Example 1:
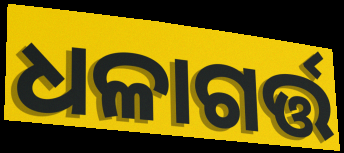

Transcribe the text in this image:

ଧଳାଗର୍ତ୍ତ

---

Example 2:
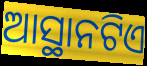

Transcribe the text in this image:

ଆସ୍ଥାନଟିଏ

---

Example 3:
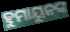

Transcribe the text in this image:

ହୁମାୟୁନଙ୍କ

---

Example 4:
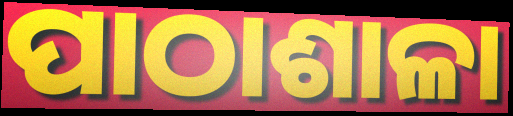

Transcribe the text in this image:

ପାଠାଶାଳା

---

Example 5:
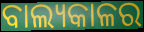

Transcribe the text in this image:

ବାଲ୍ୟକାଳର